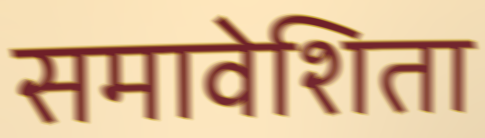
समावेशिता